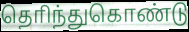
தெரிந்துகொண்டு